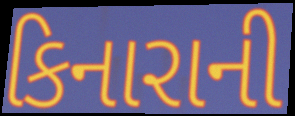
કિનારાની